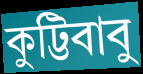
কুট্টিবাবু